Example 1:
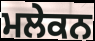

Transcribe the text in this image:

ਮਲੇਕਨ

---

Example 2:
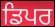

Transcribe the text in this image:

ਡਿਪਰ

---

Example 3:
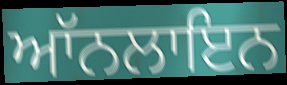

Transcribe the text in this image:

ਆੱਨਲਾਇਨ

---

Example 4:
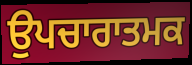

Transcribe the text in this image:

ਉਪਚਾਰਾਤਮਕ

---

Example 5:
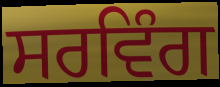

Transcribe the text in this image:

ਸਰਵਿੰਗ